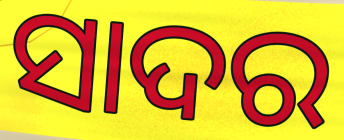
ସାଦର